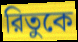
রিতুকে